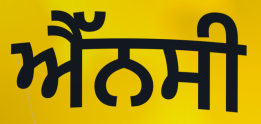
ਐੱਨਸੀ